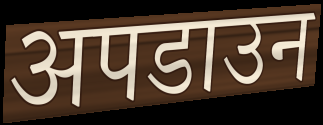
अपडाउन